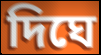
দিঘে